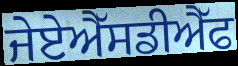
ਜੇਏਐੱਸਡੀਐੱਫ